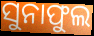
ସୁନାଫୁଲ